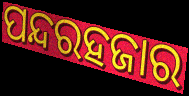
ପନ୍ଦରହଜାର